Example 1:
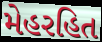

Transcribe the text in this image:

મેહરહિત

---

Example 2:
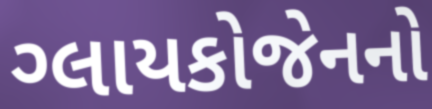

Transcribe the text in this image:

ગ્લાયકોજેનનો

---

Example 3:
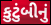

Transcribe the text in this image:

કુટુંબીનું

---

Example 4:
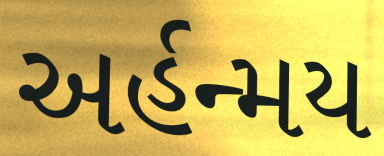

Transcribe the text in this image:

અર્હન્મય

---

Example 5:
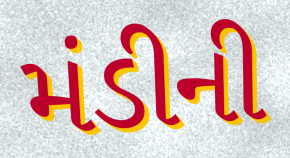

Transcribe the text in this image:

મંડીની